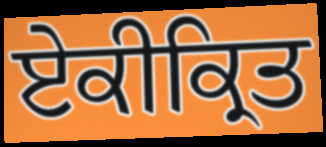
ਏਕੀਕ੍ਰਿਤ